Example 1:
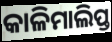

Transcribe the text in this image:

କାଳିମାଲିପ୍ତ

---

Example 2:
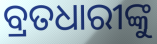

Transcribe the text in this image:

ବ୍ରତଧାରୀଙ୍କୁ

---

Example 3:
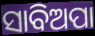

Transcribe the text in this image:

ସାବିଅପା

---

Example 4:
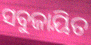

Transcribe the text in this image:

ସବୁଜାୟିତ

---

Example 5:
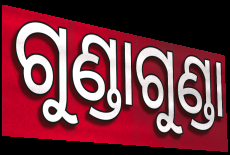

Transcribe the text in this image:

ଗୁଣ୍ଡାଗୁଣ୍ଡା